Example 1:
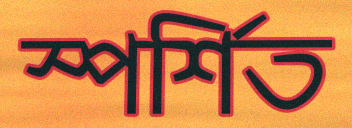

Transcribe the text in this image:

স্পর্শিত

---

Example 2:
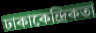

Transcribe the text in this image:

ঢাকাকেন্দ্রিকতা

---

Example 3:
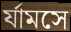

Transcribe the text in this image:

র্যামসে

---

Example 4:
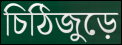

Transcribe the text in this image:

চিঠিজুড়ে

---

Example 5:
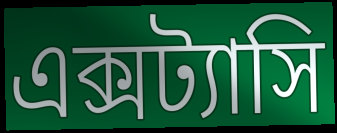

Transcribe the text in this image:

এক্সট্যাসি